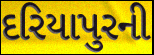
દરિયાપુરની